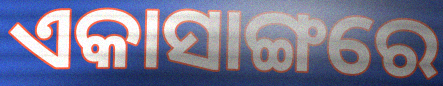
ଏକାସାଙ୍ଗରେ